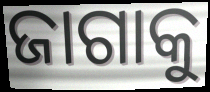
ଜାଗାକୁ